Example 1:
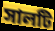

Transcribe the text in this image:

সালটি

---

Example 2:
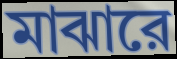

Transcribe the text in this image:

মাঝারে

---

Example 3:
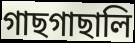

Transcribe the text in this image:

গাছগাছালি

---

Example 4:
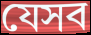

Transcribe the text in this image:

যেসব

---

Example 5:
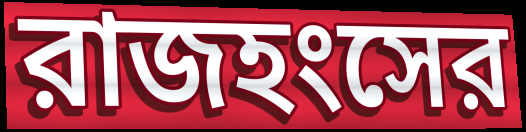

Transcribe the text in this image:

রাজহংসের